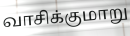
வாசிக்குமாறு